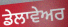
ਡੇਲਾਵੇਅਰ